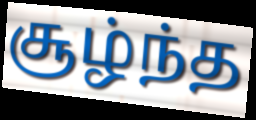
சூழ்ந்த